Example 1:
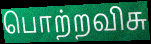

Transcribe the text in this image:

பொற்றவிசு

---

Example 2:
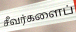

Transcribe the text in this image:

சீவர்களைப்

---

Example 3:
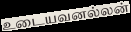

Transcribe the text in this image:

உடையவனல்லன்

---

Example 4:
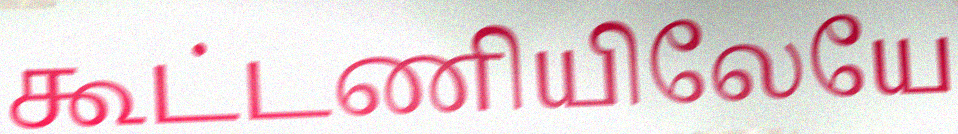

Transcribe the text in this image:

கூட்டணியிலேயே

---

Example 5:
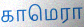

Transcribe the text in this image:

காமெரா